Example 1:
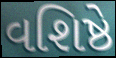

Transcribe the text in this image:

વશિષ્ઠે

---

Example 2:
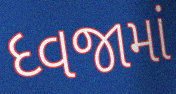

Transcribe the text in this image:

ધ્વજામાં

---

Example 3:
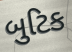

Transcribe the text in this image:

બુટિક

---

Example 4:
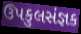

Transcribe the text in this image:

ઉપકુલસંજ્ઞક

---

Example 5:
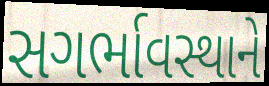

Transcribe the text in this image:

સગર્ભાવસ્થાને